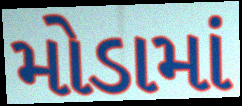
મોડામાં